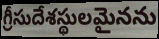
గ్రీసుదేశస్థులమైనను